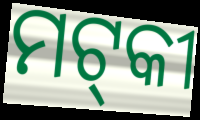
ମଟ୍‌କୀ